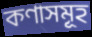
কণাসমূহ